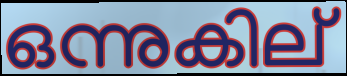
ഒന്നുകില്